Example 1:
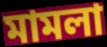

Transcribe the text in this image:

মামলা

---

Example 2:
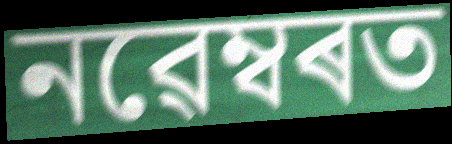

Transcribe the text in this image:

নৱেম্বৰত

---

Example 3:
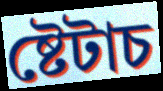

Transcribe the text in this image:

ষ্টেটাচ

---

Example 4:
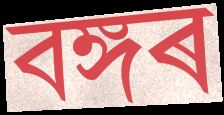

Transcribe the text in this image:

বঙ্গৰ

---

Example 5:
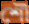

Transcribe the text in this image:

শৌ